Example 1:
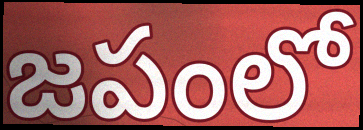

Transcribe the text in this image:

జపంలో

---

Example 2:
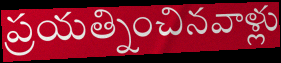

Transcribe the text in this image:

ప్రయత్నించినవాళ్లు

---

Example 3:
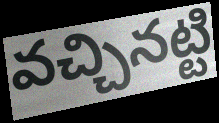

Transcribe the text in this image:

వచ్చినట్టి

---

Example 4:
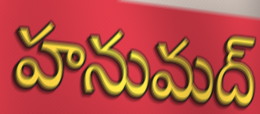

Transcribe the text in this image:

హనుమద్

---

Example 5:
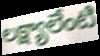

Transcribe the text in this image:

లక్ష్యాలేంటి